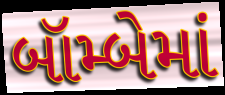
બૉમ્બેમાં